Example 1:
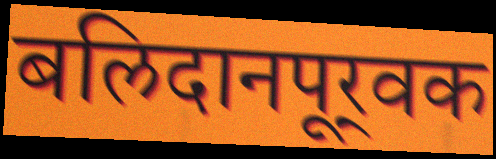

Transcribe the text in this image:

बलिदानपूर्वक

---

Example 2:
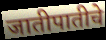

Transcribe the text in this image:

जातीपातीचे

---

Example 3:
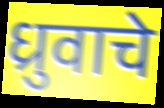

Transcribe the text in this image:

ध्रुवाचे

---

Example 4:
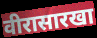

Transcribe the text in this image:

वीरासारखा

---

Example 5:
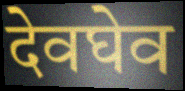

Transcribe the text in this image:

देवघेव